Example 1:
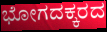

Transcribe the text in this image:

ಭೋಗದಕ್ಕರದ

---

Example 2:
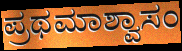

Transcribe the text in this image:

ಪ್ರಥಮಾಶ್ವಾಸಂ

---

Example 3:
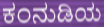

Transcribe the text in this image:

ಕಂನುಡಿಯ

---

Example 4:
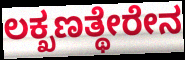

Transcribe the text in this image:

ಲಕ್ಖಣತ್ಥೇರೇನ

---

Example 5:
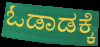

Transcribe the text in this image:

ಓಡಾಡಕ್ಕೆ